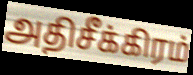
அதிசீக்கிரம்